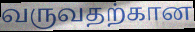
வருவதற்கான